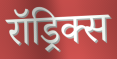
रॉड्रिक्स